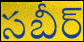
సబీర్